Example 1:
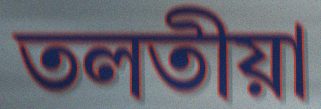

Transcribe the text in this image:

তলতীয়া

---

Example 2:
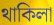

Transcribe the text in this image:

থাকিলা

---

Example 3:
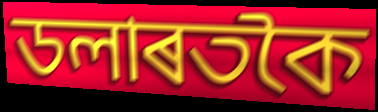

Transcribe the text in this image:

ডলাৰতকৈ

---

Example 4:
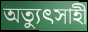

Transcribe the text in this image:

অত্যুৎসাহী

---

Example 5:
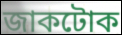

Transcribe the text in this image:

জাকটোক